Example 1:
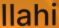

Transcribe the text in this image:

Ilahi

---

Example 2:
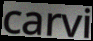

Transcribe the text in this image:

carvi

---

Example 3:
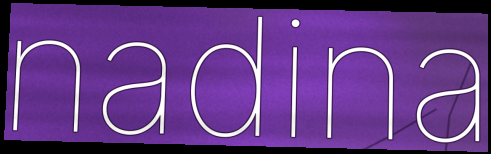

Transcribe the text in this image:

nadina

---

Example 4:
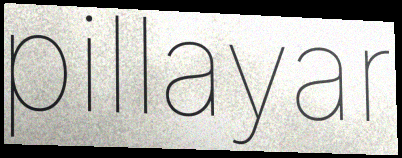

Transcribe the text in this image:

pillayar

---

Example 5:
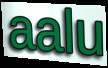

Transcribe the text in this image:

aalu